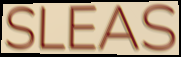
SLEAS